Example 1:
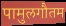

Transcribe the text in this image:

पामुलगौतम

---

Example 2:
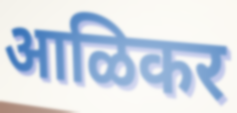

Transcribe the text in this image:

आळिकर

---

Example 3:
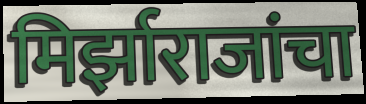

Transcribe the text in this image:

मिर्झाराजांचा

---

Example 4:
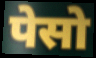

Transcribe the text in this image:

पेसो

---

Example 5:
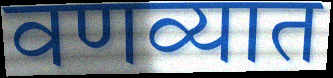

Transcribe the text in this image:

वणव्यात